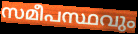
സമീപസ്ഥവും